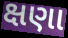
ક્ષણા